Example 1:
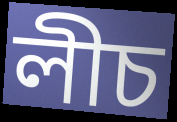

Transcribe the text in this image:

লীচ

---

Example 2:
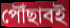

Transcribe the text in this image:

পৌঁছাবই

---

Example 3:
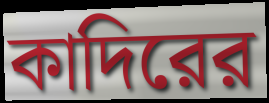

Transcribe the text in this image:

কাদিরের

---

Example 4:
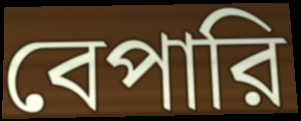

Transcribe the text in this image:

বেপারি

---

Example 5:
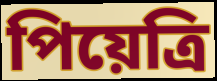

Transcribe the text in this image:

পিয়েত্রি